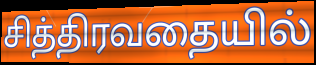
சித்திரவதையில்